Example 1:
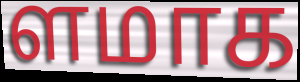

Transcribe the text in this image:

ளமாக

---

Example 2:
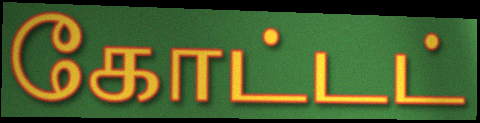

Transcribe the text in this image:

கோட்டட்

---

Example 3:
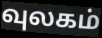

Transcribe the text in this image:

வுலகம்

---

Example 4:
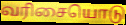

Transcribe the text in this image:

வரிசையொடு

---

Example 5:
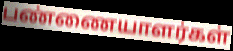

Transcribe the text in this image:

பண்ணையாளர்கள்